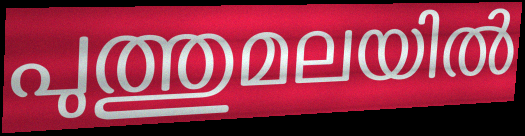
പുത്തുമലയിൽ